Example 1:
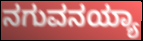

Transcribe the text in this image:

ನಗುವನಯ್ಯಾ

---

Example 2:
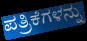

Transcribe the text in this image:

ಪತ್ರಿಕೆಗಳನ್ನು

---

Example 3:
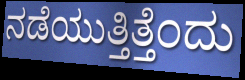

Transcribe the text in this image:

ನಡೆಯುತ್ತಿತ್ತೆಂದು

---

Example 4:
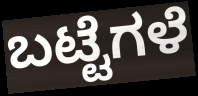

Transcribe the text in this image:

ಬಟ್ಟೆಗಳೆ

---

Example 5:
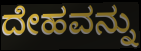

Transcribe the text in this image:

ದೇಹವನ್ನು